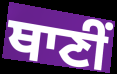
ਥਾਣੀਂ